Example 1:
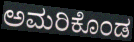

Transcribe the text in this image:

ಅಮರಿಕೊಂಡ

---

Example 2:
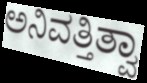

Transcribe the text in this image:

ಅನಿವತ್ತಿತ್ವಾ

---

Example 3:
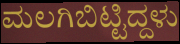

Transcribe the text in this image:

ಮಲಗಿಬಿಟ್ಟಿದ್ದಳು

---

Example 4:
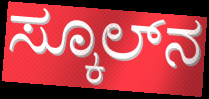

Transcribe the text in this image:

ಸ್ಕೂಲ್‌ನ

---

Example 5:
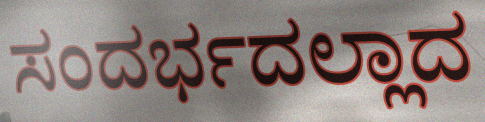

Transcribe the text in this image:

ಸಂದರ್ಭದಲ್ಲಾದ